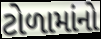
ટોળામાંનો